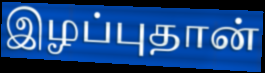
இழப்புதான்